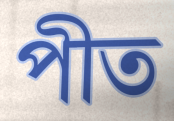
পীত